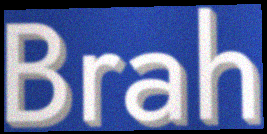
Brah